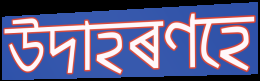
উদাহৰণহে